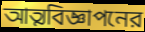
আত্মবিজ্ঞাপনের